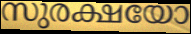
സുരക്ഷയോ